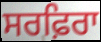
ਸਰਫ਼ਿਰਾ